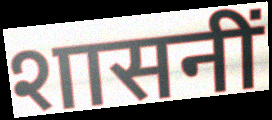
शासनीं